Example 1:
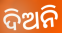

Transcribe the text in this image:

ଦିଅନି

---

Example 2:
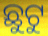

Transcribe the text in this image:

ଛୁଟୁ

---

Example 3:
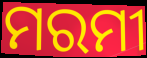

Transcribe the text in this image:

ମରମୀ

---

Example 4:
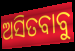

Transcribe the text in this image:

ଅସିତବାବୁ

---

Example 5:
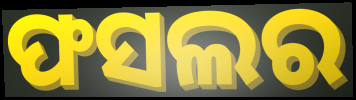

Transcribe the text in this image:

ଫସଲର